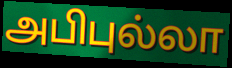
அபிபுல்லா